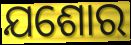
ଯଶୋର